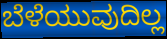
ಬೆಳೆಯುವುದಿಲ್ಲ